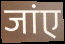
जांए